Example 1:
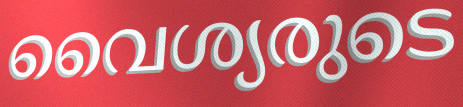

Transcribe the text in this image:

വൈശ്യരുടെ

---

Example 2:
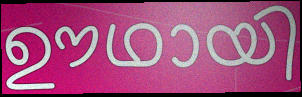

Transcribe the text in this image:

ഊഥായി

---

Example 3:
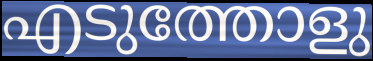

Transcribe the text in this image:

എടുത്തോളു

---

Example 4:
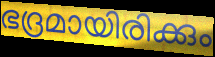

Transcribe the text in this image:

ഭദ്രമായിരിക്കും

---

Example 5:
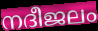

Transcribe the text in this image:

നദീജലം